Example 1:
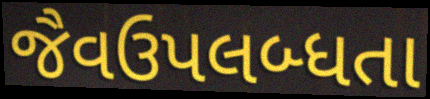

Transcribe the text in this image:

જૈવઉપલબ્ધતા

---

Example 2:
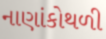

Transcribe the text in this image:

નાણાંકોથળી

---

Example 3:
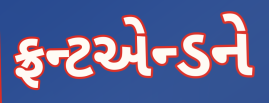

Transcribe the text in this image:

ફ્રન્ટએન્ડને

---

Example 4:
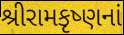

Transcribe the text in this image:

શ્રીરામકૃષ્ણનાં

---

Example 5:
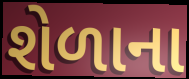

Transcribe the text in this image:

શેળાના